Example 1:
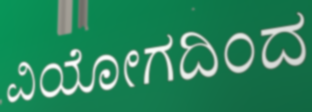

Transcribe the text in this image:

ವಿಯೋಗದಿಂದ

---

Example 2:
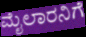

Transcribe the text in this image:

ಮೈಲಾರನಿಗೆ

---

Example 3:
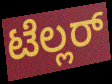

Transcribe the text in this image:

ಟೆಲ್ಲರ್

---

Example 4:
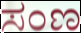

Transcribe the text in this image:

ಸಂಣ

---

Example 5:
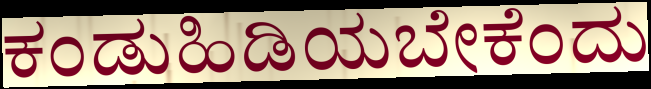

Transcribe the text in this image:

ಕಂಡುಹಿಡಿಯಬೇಕೆಂದು